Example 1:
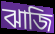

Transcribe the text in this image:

ঝাজি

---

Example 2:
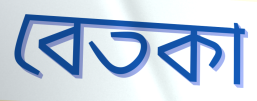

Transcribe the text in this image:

বেতকা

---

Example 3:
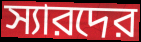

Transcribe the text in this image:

স্যারদের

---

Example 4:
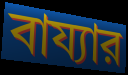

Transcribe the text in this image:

বায্যার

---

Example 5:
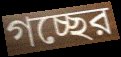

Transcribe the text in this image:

গচ্ছের